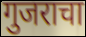
गुजराचा